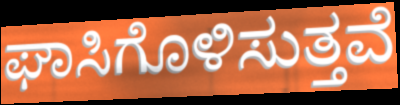
ಘಾಸಿಗೊಳಿಸುತ್ತವೆ